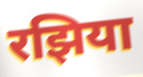
रझिया